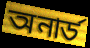
অনার্ড